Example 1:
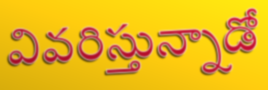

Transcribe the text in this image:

వివరిస్తున్నాడో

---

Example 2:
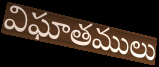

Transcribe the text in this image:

విఘాతములు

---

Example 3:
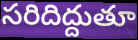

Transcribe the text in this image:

సరిదిద్దుతూ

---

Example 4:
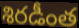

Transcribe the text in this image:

శిరడీంత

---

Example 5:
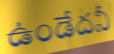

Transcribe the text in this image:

ఉండేదనీ